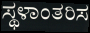
ಸ್ಥಳಾಂತರಿಸ